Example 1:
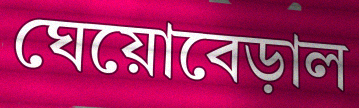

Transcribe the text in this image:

ঘেয়োবেড়াল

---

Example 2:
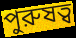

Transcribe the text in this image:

পুরুষত্ব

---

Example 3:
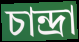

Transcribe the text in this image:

চান্দ্রা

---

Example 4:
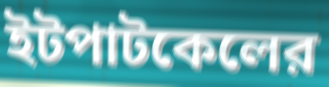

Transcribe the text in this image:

ইটপাটকেলের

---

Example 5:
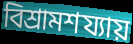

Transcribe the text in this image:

বিশ্রামশয্যায়